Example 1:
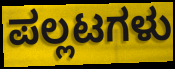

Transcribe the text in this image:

ಪಲ್ಲಟಗಳು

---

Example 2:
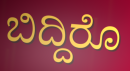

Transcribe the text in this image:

ಬಿದ್ದಿರೊ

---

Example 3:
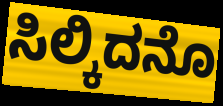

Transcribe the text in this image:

ಸಿಲ್ಕಿದನೊ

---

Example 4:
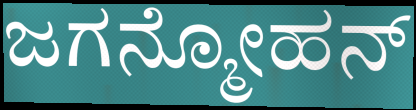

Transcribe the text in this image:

ಜಗನ್ಮೋಹನ್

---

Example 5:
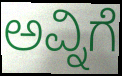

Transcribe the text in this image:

ಅವ್ನಿಗೆ